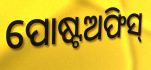
ପୋଷ୍ଟଅଫିସ୍